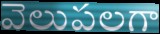
వెలుపలగా